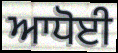
ਆਧੋਈ